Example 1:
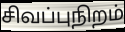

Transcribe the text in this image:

சிவப்புநிறம்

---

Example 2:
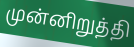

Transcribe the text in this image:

முன்னிறுத்தி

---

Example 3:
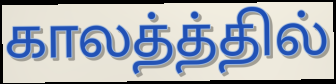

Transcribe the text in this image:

காலத்த்தில்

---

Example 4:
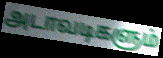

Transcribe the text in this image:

அடாவடிகளும்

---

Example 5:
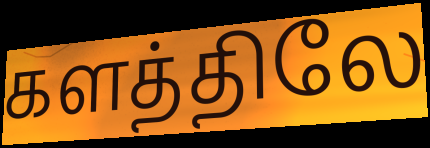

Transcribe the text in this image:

களத்திலே